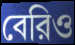
বেরিও